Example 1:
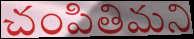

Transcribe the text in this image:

చంపితిమని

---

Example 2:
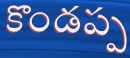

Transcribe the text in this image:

కొండప్ప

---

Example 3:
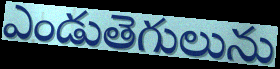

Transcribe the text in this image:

ఎండుతెగులును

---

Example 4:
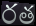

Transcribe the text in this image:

రత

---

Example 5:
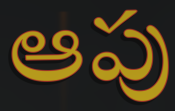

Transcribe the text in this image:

ఆపు